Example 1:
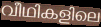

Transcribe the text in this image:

വീഥികളിലെ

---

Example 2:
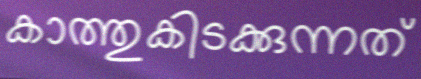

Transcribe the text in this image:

കാത്തുകിടക്കുന്നത്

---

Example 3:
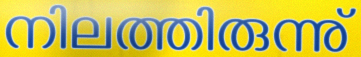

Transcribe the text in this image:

നിലത്തിരുന്നു്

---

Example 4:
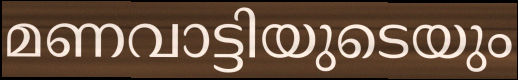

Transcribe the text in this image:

മണവാട്ടിയുടെയും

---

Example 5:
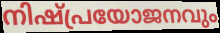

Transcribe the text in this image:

നിഷ്പ്രയോജനവും